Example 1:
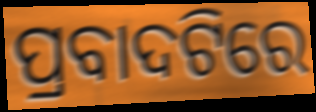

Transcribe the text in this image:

ପ୍ରବାଦଟିରେ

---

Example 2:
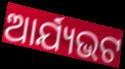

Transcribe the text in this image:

ଆର୍ଯ୍ୟଭଟ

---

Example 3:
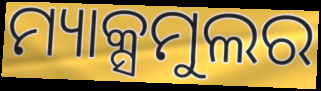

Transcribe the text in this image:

ମ୍ୟାକ୍ସମୁଲର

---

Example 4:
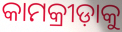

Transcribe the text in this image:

କାମକ୍ରୀଡ଼ାକୁ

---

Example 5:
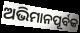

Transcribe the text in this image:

ଅଭିମାନପୂର୍ବକ